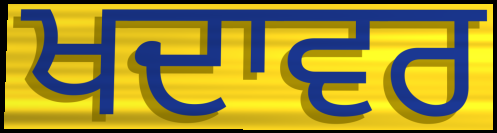
ਖਦਾਵਰ